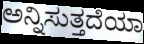
ಅನ್ನಿಸುತ್ತದೆಯಾ